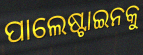
ପାଲେଷ୍ଟାଇନକୁ